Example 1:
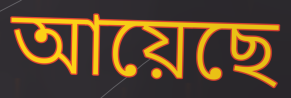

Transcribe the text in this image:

আয়েছে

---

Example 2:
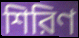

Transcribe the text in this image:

শিরিণ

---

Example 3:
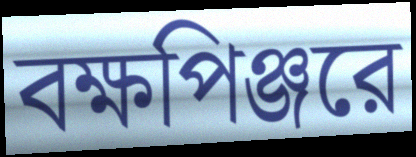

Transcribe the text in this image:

বক্ষপিঞ্জরে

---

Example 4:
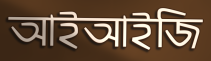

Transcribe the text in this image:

আইআইজি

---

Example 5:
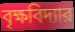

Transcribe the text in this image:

বৃক্ষবিদ্যার